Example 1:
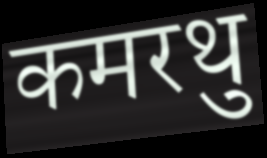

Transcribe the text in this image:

कमरथु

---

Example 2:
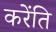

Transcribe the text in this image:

करेंति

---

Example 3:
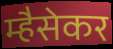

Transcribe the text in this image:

म्हैसेकर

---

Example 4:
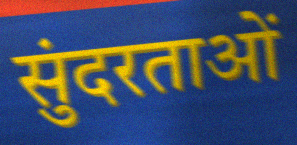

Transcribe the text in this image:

सुंदरताओं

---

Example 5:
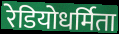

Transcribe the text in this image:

रेडियोधर्मिता